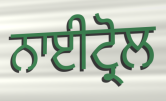
ਨਾਈਟ੍ਰੋਲ